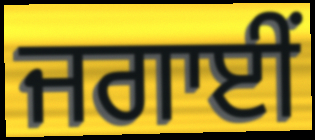
ਜਗਾਈਂ